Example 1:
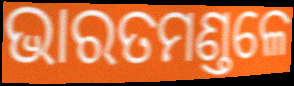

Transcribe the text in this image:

ଭାରତମଣ୍ଡଳେ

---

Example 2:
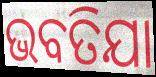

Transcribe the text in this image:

ଭବତିଯା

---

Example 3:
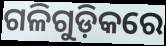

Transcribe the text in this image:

ଗଳିଗୁଡ଼ିକରେ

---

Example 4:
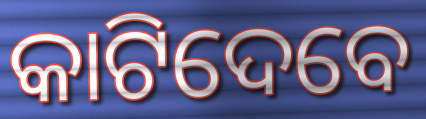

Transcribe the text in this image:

କାଟିଦେବେ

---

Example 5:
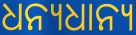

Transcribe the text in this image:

ଧନ୍ୟଧାନ୍ୟ